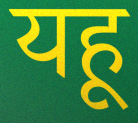
यहू